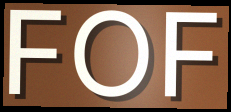
FOF